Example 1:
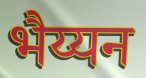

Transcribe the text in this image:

भैय्यन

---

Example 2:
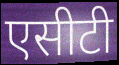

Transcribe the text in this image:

एसीटी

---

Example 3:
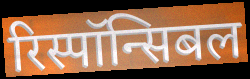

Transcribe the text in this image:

रिस्पॉन्सिबल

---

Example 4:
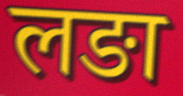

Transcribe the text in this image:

लङा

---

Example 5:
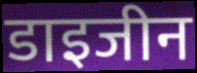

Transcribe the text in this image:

डाइजीन